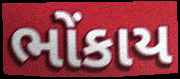
ભોંકાય